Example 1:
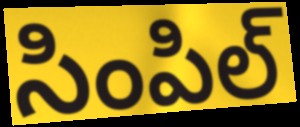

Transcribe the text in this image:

సింపిల్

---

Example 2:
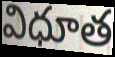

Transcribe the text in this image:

విధూత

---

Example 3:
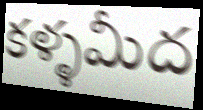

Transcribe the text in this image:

కళ్ళమీద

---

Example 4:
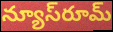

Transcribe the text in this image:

న్యూస్‌రూమ్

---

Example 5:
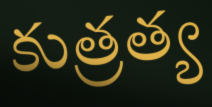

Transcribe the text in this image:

కుత్రత్య